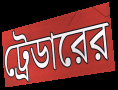
ট্রেডারের